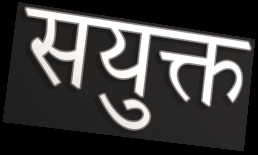
सयुक्त